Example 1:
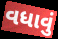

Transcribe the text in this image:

વધાવું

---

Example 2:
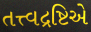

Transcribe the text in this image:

તત્ત્વદ્રષ્ટિએ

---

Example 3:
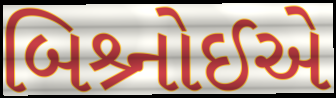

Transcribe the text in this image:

બિશ્ર્નોઈએ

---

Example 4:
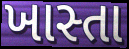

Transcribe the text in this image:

ખાસ્તા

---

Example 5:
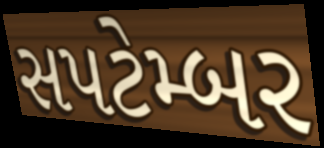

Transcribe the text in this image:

સપટેમ્બર